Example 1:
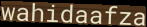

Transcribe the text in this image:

wahidaafza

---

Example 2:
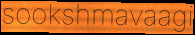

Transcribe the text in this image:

sookshmavaagi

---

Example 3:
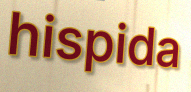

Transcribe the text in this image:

hispida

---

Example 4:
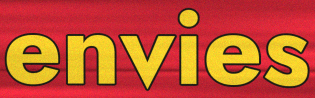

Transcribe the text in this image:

envies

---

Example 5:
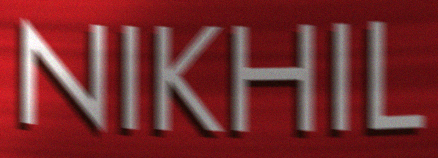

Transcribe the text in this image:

NIKHIL